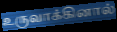
உருவாக்கினால்